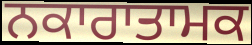
ਨਕਾਰਾਤਾਮਕ